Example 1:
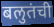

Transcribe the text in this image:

बलुतंची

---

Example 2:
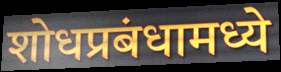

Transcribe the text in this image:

शोधप्रबंधामध्ये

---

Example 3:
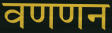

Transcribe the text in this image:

वणणन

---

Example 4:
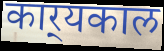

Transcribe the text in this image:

कार्यकाल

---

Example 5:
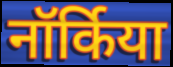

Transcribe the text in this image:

नॉर्किया